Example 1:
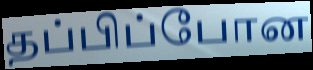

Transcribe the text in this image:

தப்பிப்போன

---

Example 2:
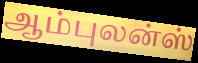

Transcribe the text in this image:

ஆம்புலன்ஸ்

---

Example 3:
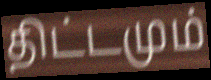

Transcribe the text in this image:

திட்டமும்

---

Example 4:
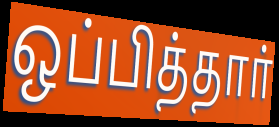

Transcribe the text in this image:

ஒப்பித்தார்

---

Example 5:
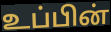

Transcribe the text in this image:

உப்பின்